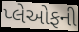
પ્લેઓફની